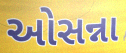
ઓસન્ના